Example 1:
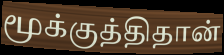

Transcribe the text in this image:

மூக்குத்திதான்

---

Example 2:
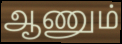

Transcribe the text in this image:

ஆணும்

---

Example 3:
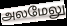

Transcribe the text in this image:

அலமேலு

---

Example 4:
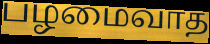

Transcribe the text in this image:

பழமைவாத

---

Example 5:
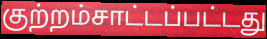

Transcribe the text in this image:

குற்றம்சாட்டப்பட்டது